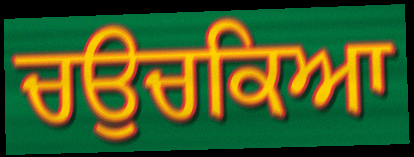
ਚਉਚਕਿਆ